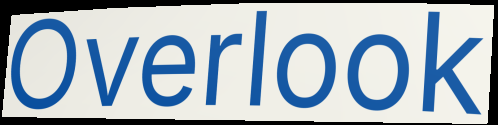
Overlook